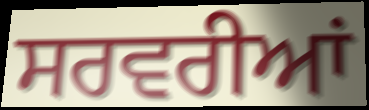
ਸਰਵਰੀਆਂ